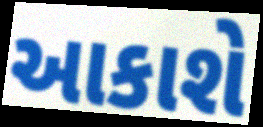
આકાશે